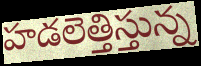
హడలెత్తిస్తున్న